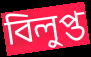
বিলুপ্ত